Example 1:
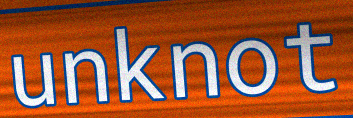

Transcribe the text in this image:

unknot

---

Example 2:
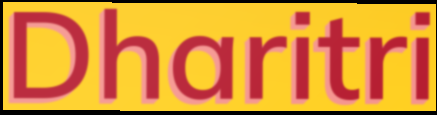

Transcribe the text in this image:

Dharitri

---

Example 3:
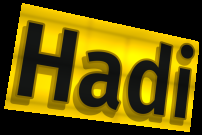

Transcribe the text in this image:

Hadi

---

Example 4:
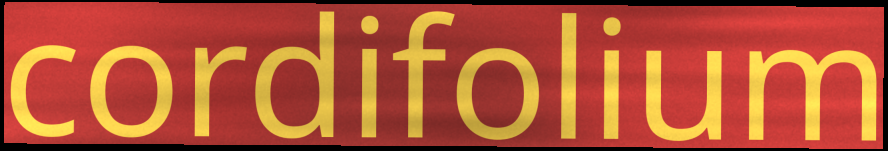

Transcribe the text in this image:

cordifolium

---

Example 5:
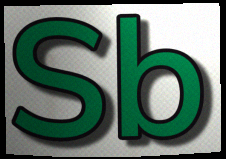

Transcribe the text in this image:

Sb